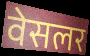
वेसलर